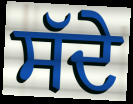
ਸੱਦੇ